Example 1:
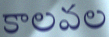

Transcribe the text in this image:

కాలవల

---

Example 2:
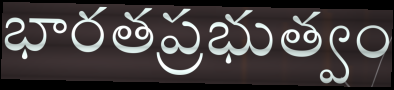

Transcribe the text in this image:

భారతప్రభుత్వం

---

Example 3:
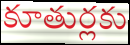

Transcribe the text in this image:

కూతుర్లకు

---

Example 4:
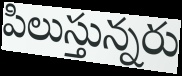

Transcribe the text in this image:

పిలుస్తున్నరు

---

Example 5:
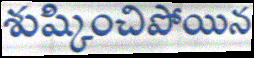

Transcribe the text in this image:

శుష్కించిపోయిన